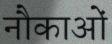
नौकाओं